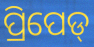
ପ୍ରିପେଡ୍